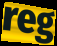
reg